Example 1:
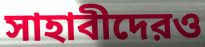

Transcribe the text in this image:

সাহাবীদেরও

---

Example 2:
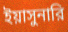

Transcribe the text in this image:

ইয়াসুনারি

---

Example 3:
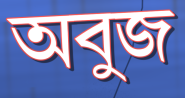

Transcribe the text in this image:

অবুজ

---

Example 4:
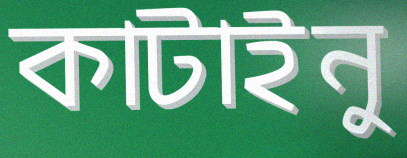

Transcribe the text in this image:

কাটাইনু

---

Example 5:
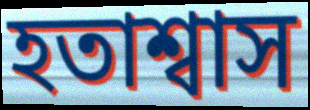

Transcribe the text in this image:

হতাশ্বাস